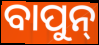
ବାପୁନ୍